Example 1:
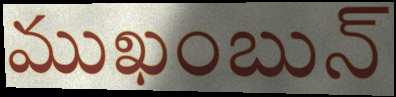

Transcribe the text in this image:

ముఖంబున్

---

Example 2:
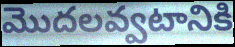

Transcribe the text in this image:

మొదలవ్వటానికి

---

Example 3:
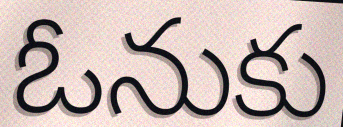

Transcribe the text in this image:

ఓనుకు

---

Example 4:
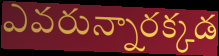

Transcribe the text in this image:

ఎవరున్నారక్కడ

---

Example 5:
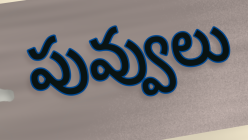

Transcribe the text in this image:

పువ్వులు